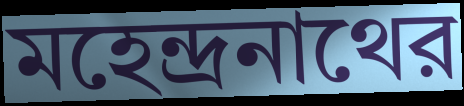
মহেন্দ্রনাথের